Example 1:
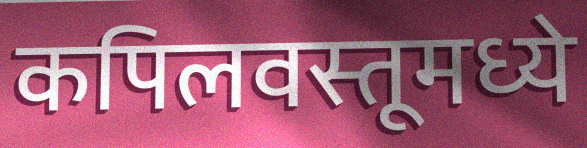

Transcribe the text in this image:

कपिलवस्तूमध्ये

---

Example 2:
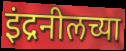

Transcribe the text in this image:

इंद्रनीलच्या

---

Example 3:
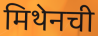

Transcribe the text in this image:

मिथेनची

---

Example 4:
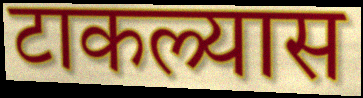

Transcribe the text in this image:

टाकल्यास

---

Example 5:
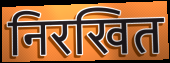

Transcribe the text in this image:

निरखित